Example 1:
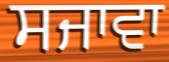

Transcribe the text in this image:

ਸਜਾਵਾ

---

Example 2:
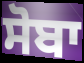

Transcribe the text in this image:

ਸੋਬਾ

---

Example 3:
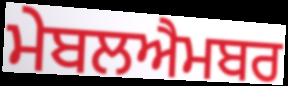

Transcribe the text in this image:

ਮੇਬਲਐਮਬਰ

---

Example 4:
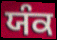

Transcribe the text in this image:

ਯੰਕ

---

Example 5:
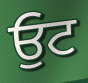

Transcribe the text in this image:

ਓੁਟ